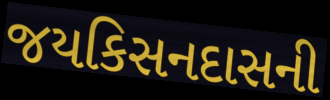
જયકિસનદાસની